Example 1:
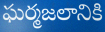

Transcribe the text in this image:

ఘర్మజలానికి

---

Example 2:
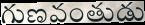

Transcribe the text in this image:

గుణవంతుడు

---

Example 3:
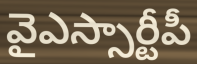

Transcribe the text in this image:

వైఎస్సార్టీపీ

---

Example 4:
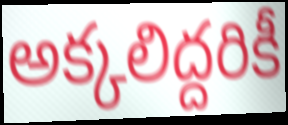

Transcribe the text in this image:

అక్కలిద్దరికీ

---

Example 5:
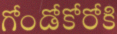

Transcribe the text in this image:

గోండోకోరోకి